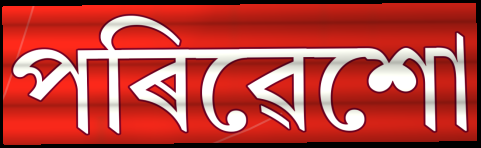
পৰিৱেশো